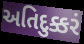
અતિદુક્કરં